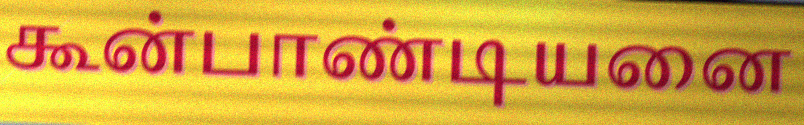
கூன்பாண்டியனை